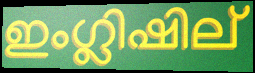
ഇംഗ്ലിഷില്